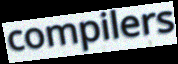
compilers